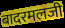
बादरमलजी